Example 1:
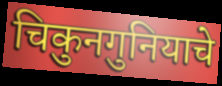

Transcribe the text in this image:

चिकुनगुनियाचे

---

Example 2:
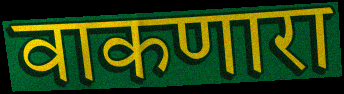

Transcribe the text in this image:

वाकणारा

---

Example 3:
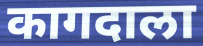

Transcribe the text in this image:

कागदाला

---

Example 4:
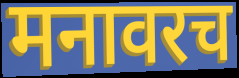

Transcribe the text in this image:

मनावरच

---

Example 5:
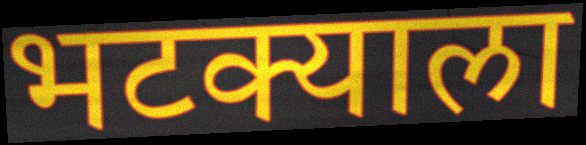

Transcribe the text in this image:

भटक्याला